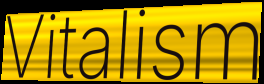
Vitalism